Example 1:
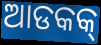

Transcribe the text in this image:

ଆଡକକ୍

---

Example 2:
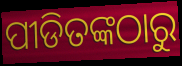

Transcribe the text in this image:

ପୀଡିତଙ୍କଠାରୁ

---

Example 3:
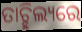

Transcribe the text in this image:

ତାଚ୍ଛିଲ୍ୟରେ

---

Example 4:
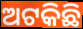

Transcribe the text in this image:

ଅଟକିଛି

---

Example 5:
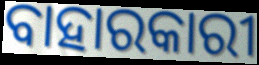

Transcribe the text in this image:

ବାହାରକାରୀ